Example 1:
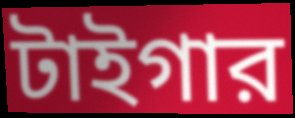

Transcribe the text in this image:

টাইগার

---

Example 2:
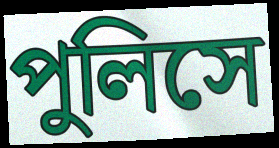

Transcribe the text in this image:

পুলিসে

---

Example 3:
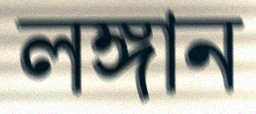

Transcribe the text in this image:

লঙ্গান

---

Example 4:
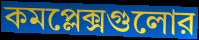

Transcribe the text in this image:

কমপ্লেক্সগুলোর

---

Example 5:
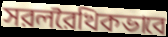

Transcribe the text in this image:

সরলরৈখিকভাবে